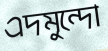
এদমুন্দো